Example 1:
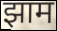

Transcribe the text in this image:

झाम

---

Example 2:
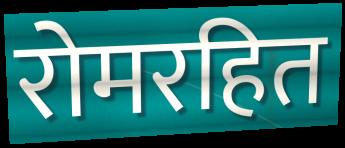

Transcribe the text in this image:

रोमरहित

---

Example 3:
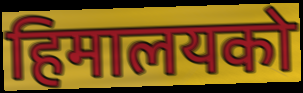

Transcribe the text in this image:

हिमालयको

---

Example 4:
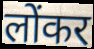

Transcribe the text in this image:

लोंकर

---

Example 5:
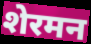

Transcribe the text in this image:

शेरमन